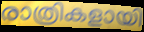
രാത്രികളായി